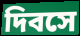
দিবসে